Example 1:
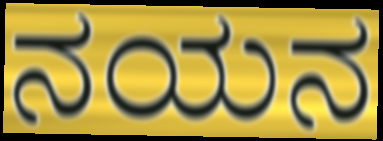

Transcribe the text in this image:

ನಯನ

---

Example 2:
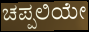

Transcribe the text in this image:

ಚಪ್ಪಲಿಯೇ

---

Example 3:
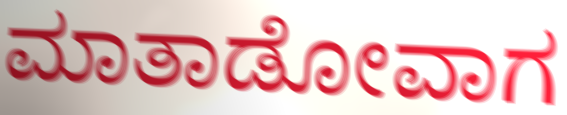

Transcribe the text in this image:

ಮಾತಾಡೋವಾಗ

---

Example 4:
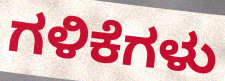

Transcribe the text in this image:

ಗಳಿಕೆಗಳು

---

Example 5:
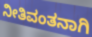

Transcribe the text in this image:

ನೀತಿವಂತನಾಗಿ